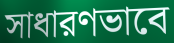
সাধারণভাবে